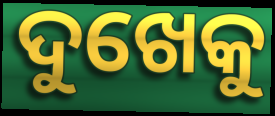
ଦୁଖେକୁ